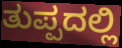
ತುಪ್ಪದಲ್ಲಿ